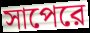
সাপেরে